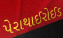
પેરાથાઈરોઈડ